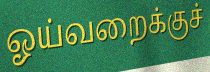
ஓய்வறைக்குச்